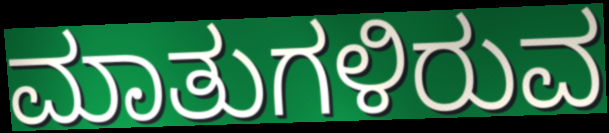
ಮಾತುಗಳಿರುವ